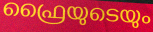
ഫ്രൈയുടെയും